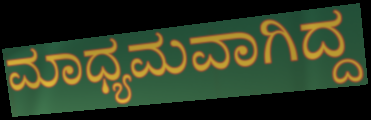
ಮಾಧ್ಯಮವಾಗಿದ್ದ